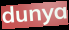
dunya